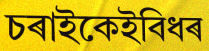
চৰাইকেইবিধৰ